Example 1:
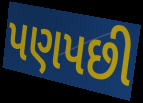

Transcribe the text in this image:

પણપછી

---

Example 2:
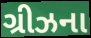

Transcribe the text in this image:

ગ્રીઝના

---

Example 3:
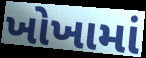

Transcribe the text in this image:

ખોખામાં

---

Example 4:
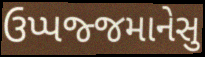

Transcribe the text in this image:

ઉપ્પજ્જમાનેસુ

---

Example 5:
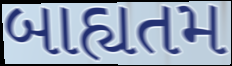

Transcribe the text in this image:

બાહ્યતમ